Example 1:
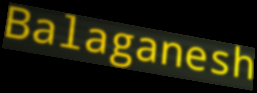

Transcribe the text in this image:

Balaganesh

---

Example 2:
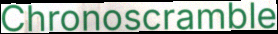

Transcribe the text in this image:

Chronoscramble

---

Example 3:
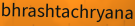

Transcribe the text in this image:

bhrashtachryana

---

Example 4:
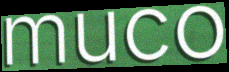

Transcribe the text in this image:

muco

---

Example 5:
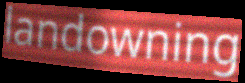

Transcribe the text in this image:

landowning